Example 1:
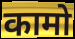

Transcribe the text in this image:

कामो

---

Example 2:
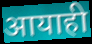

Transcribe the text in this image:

आयाही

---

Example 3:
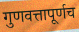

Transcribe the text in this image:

गुणवत्तापूर्णच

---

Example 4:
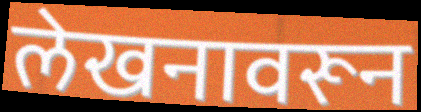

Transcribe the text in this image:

लेखनावरून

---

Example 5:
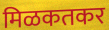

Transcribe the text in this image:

मिळकतकर